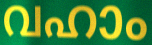
വഹാം